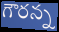
గౌరన్న